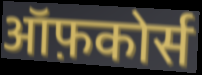
ऑफ़कोर्स